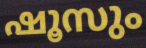
ഷൂസും